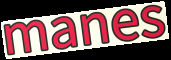
manes